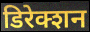
डिरेक्शन